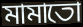
মামাতো